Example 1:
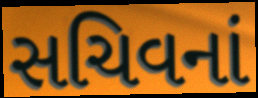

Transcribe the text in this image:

સચિવનાં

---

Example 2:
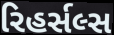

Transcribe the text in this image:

રિહર્સલ્સ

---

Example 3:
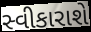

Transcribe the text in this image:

સ્વીકારાશે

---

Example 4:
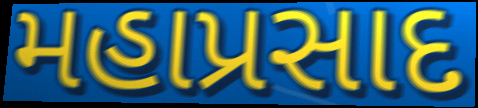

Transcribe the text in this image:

મહાપ્રસાદ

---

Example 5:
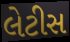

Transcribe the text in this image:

લેટીસ